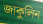
জাকুলিন